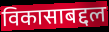
विकासाबद्दल